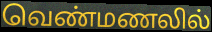
வெண்மணலில்